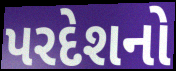
પરદેશનો